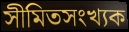
সীমিতসংখ্যক